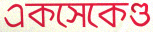
একসেকেণ্ড